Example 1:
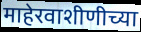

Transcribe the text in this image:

माहेरवाशीणीच्या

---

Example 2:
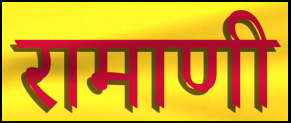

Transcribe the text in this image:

रामाणी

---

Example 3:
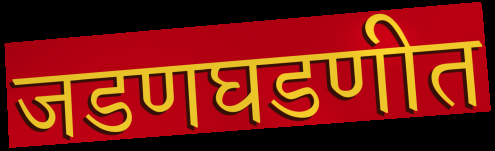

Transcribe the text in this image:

जडणघडणीत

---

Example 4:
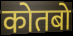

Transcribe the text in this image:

कोतबो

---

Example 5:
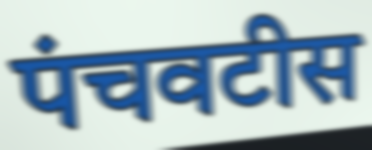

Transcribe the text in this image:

पंचवटीस